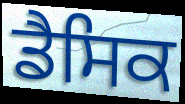
ਡੈਸਿਕ